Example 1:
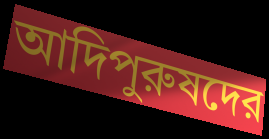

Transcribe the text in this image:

আদিপুরুষদের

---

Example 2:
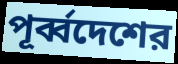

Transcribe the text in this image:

পূর্ব্বদেশের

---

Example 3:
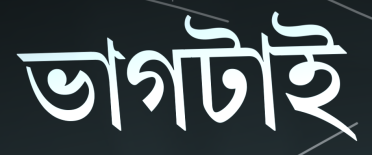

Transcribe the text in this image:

ভাগটাই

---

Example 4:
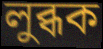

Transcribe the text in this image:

লুব্ধক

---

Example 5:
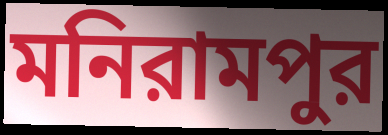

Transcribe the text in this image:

মনিরামপুর